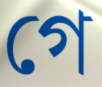
গে